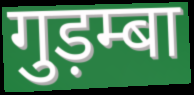
गुड़म्बा